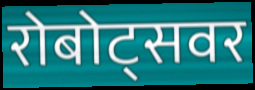
रोबोट्सवर